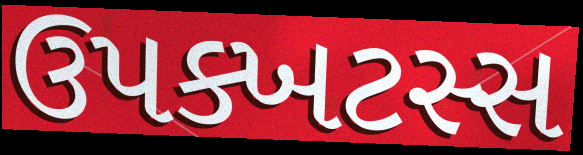
ઉપક્ખટસ્સ